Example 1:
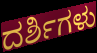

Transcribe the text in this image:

ದರ್ಶಿಗಳು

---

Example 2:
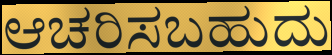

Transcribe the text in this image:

ಆಚರಿಸಬಹುದು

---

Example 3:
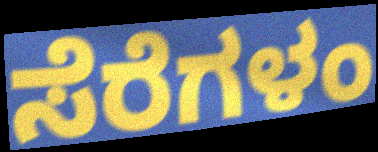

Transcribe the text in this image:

ಸೆರೆಗಳಂ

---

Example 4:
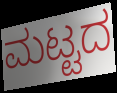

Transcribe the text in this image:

ಮಟ್ಟದ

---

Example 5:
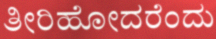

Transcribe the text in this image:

ತೀರಿಹೋದರೆಂದು